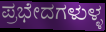
ಪ್ರಭೇದಗಳುಳ್ಳ